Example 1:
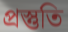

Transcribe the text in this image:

প্রস্তুতি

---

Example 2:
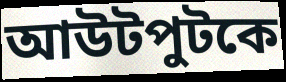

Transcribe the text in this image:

আউটপুটকে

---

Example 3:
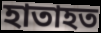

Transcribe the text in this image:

হাতাহত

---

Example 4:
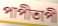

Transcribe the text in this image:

পাপীতাপী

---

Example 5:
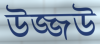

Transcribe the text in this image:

উজ্জউ